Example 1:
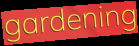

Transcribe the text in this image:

gardening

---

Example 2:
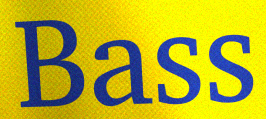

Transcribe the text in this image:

Bass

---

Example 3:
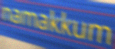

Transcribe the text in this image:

namakkum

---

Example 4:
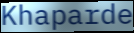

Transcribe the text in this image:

Khaparde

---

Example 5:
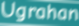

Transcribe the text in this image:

Ugrahan